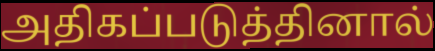
அதிகப்படுத்தினால்